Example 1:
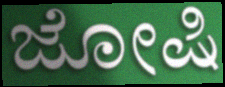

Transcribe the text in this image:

ಜೋಷಿ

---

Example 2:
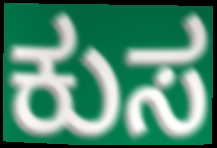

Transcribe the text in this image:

ಕುಸ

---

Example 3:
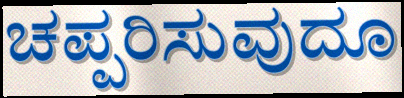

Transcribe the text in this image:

ಚಪ್ಪರಿಸುವುದೂ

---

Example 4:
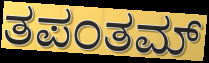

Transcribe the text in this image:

ತಪಂತಮ್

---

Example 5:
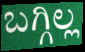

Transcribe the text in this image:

ಬಗ್ಗಿಲ್ಲ